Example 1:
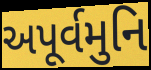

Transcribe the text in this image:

અપૂર્વમુનિ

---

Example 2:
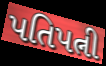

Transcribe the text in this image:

પતિપત્ની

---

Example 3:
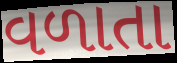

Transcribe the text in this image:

વળાતા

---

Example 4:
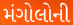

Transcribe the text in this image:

મંગોલોની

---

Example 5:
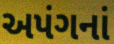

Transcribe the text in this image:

અપંગનાં